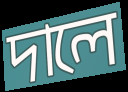
দালে